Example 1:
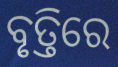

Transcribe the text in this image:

ବୃତ୍ତିରେ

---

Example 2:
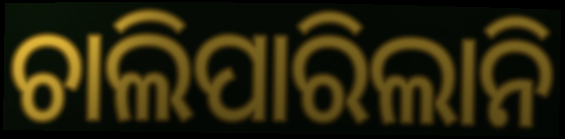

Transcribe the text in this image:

ଚାଲିପାରିଲାନି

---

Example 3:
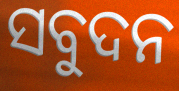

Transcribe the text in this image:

ସବୁଦନ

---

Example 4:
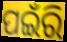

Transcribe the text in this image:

ପଇଁରି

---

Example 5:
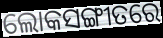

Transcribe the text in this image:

ଲୋକସଙ୍ଗୀତରେ